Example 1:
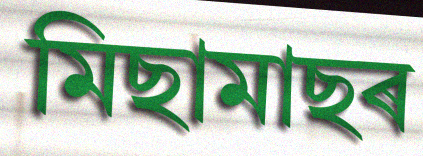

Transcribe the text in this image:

মিছামাছৰ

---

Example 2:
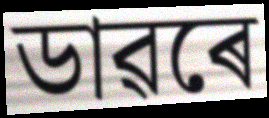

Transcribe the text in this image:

ডাৱৰে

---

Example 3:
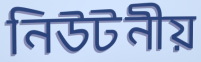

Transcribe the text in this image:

নিউটনীয়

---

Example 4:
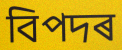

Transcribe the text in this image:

বিপদৰ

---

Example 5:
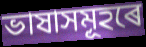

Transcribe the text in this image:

ভাষাসমূহৰে